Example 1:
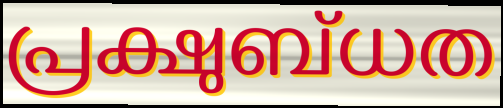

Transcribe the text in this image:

പ്രക്ഷുബ്ധത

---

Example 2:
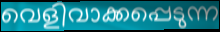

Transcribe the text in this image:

വെളിവാക്കപ്പെടുന്ന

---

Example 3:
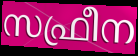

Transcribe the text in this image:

സഫ്രീന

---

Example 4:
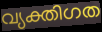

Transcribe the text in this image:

വ്യക്തിഗത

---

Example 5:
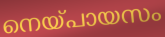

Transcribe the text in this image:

നെയ്പായസം